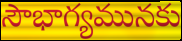
సౌభాగ్యమునకు